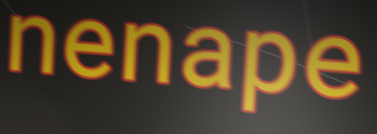
nenape